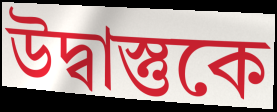
উদ্বাস্তুকে